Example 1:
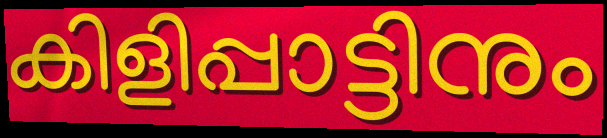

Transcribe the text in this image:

കിളിപ്പാട്ടിനും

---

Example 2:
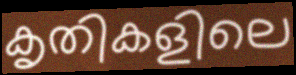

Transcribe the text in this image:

കൃതികളിലെ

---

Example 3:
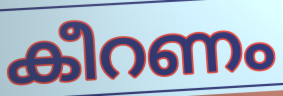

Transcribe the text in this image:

കീറണം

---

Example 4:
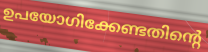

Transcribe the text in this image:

ഉപയോഗിക്കേണ്ടതിന്റെ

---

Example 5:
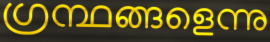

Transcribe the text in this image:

ഗ്രന്ഥങ്ങളെന്നു